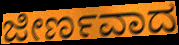
ಜೀರ್ಣವಾದ